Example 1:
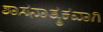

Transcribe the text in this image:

ಶಾಸನಾತ್ಮಕವಾಗಿ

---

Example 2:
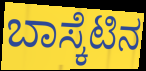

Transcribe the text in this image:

ಬಾಸ್ಕೆಟಿನ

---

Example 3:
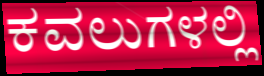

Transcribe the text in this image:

ಕವಲುಗಳಲ್ಲಿ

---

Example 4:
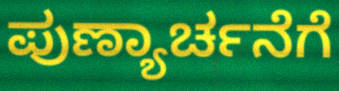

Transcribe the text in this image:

ಪುಣ್ಯಾರ್ಚನೆಗೆ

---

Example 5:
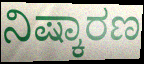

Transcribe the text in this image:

ನಿಷ್ಕಾರಣ